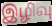
இழிவு